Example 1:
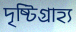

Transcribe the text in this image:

দৃষ্টিগ্রাহ্য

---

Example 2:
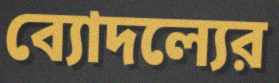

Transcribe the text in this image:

ব্যোদল্যের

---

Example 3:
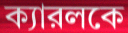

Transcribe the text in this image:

ক্যারলকে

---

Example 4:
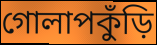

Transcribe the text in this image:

গোলাপকুঁড়ি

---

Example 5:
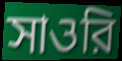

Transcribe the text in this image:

সাওরি